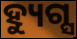
ହ୍ୟୁଗ୍ସ